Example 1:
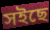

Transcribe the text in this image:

সইছে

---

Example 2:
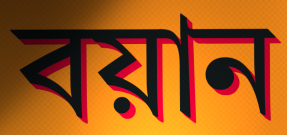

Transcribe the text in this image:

বয়ান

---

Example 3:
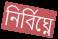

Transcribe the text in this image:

নির্বিঘ্নে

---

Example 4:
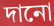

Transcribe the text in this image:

দানো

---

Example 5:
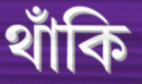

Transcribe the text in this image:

থাঁকি